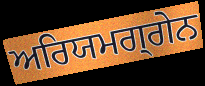
ਅਰਿਯਮਗ੍ਗੇਨ